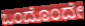
ಒಂದೊಂದೇ